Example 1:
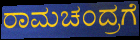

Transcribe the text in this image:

ರಾಮಚಂದ್ರಗೆ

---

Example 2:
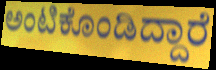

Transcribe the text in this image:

ಅಂಟಿಕೊಂಡಿದ್ದಾರೆ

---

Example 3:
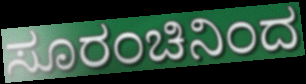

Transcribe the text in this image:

ಸೂರಂಚಿನಿಂದ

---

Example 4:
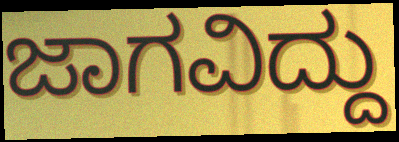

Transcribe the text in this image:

ಜಾಗವಿದ್ದು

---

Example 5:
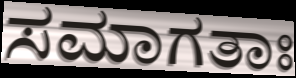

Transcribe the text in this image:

ಸಮಾಗತಾಃ